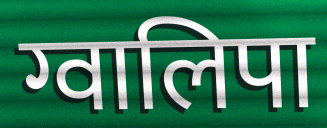
ग्वालिपा